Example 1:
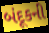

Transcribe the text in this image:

બંદૂકની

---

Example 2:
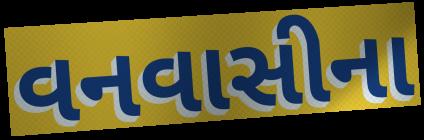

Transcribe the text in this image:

વનવાસીના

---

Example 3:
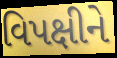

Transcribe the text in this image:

વિપક્ષીને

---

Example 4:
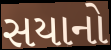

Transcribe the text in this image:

સયાનો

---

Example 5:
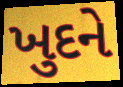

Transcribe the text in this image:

ખુદને